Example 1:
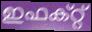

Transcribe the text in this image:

ഇഫക്റ്റ്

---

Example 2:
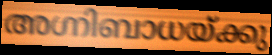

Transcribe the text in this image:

അഗ്നിബാധയ്ക്കു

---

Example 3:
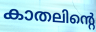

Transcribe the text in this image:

കാതലിന്റെ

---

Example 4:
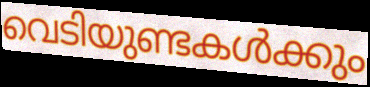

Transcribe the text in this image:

വെടിയുണ്ടകൾക്കും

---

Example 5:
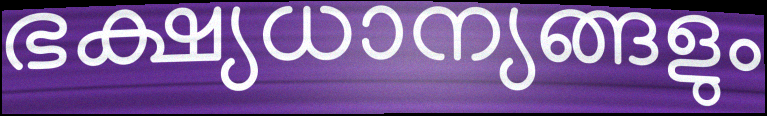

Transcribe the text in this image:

ഭക്ഷ്യധാന്യങ്ങളും